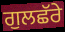
ਗੁਲਛੱਰੇ